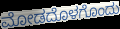
ಮೋಡದೊಳಗೊಂದು